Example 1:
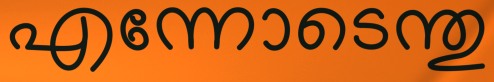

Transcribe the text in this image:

എന്നോടെന്തു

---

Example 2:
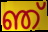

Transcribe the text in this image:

ഞ്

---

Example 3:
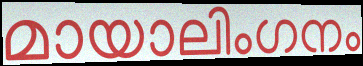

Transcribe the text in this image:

മായാലിംഗനം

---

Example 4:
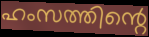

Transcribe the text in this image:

ഹംസത്തിന്റെ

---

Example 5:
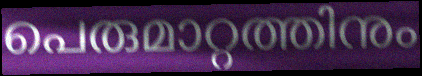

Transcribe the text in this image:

പെരുമാറ്റത്തിനും